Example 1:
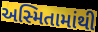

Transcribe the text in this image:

અસ્મિતામાંથી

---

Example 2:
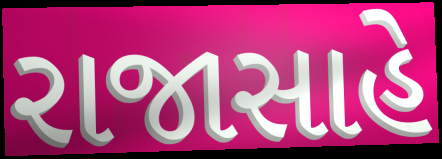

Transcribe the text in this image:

રાજાસાહે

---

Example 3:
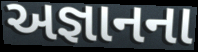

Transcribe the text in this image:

અજ્ઞાનના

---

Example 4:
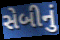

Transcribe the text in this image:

સેબીનું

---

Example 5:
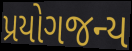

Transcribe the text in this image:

પ્રયોગજન્ય